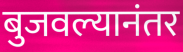
बुजवल्यानंतर